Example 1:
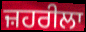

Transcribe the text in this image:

ਜ਼ਹਰੀਲਾ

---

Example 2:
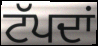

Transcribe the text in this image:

ਟੱਪਦਾਂ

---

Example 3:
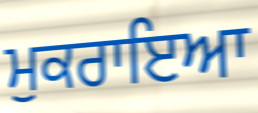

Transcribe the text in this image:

ਮੁਕਰਾਇਆ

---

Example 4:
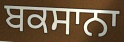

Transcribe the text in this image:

ਬਕਸਾਨਾ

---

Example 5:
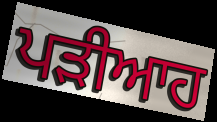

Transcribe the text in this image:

ਪੜੀਆਹ